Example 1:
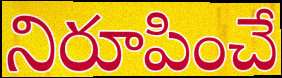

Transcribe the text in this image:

నిరూపించే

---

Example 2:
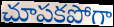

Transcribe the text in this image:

చూపకపోగా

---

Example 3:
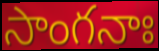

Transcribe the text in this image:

సాంగనాః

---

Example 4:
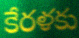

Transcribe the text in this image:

కేరళకు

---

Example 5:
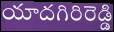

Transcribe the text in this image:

యాదగిరిరెడ్డి